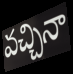
వచ్చినా